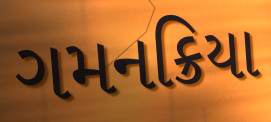
ગમનક્રિયા